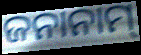
ଜନାନାମ୍